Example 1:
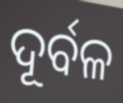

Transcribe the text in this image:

ଦୂର୍ବଳ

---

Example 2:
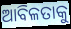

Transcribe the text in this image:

ଆବିଳତାକୁ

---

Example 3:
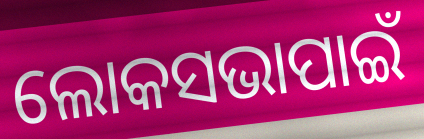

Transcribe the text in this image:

ଲୋକସଭାପାଇଁ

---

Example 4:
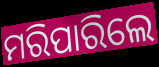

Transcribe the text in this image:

ମରିପାରିଲେ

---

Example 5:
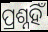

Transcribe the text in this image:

ପ୍ରଶ୍ନହିଁ